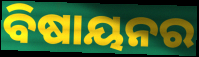
ବିଷାୟନର